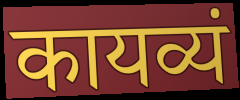
कायव्यं